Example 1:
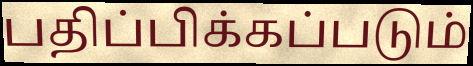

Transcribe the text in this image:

பதிப்பிக்கப்படும்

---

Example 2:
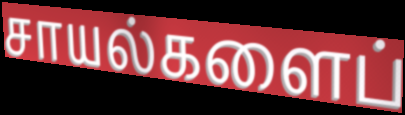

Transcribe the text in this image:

சாயல்களைப்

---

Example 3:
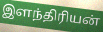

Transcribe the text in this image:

இளந்திரியன்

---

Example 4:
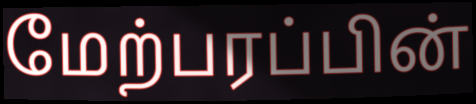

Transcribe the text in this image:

மேற்பரப்பின்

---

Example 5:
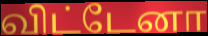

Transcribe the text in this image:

விட்டேனா